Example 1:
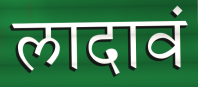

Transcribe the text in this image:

लादावं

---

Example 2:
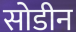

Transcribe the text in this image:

सोडीन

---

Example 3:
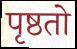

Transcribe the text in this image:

पृष्ठतो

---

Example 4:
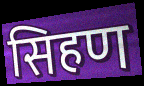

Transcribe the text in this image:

सिहण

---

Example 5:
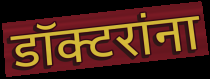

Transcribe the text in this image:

डॉक्टरांना